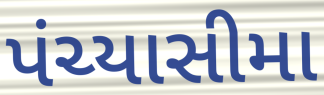
પંચ્યાસીમા